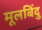
मूलबिंदु